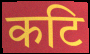
कटि